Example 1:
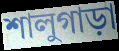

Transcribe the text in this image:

শালুগাড়া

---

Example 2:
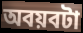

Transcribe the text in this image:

অবয়বটা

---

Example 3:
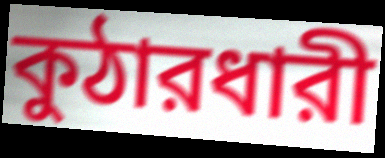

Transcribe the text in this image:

কুঠারধারী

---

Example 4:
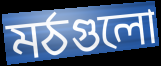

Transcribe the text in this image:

মঠগুলো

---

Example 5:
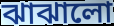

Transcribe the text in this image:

ঝাঝালো